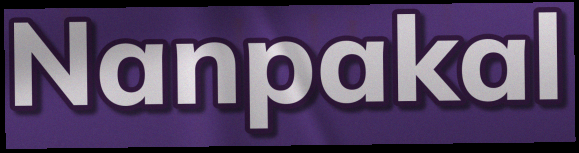
Nanpakal